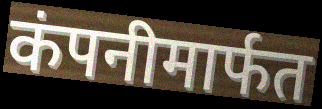
कंपनीमार्फत